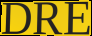
DRE